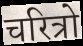
चरित्रो